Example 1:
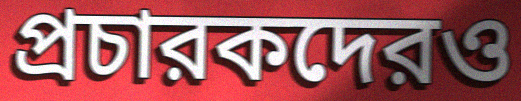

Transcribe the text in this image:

প্রচারকদেরও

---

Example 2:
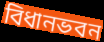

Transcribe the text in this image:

বিধানভবন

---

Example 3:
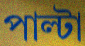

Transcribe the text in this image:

পাল্টা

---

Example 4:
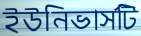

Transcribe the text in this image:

ইউনিভার্সটি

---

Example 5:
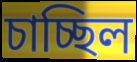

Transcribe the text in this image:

চাচ্ছিল